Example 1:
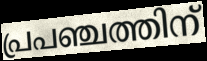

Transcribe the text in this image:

പ്രപഞ്ചത്തിന്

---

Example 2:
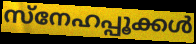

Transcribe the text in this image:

സ്നേഹപ്പൂക്കൾ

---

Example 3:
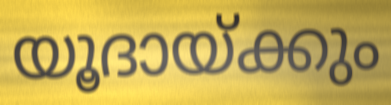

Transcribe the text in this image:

യൂദായ്ക്കും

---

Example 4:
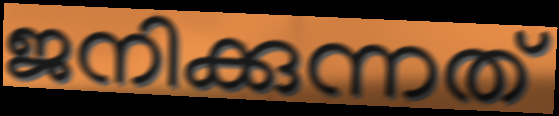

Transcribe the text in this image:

ജനിക്കുന്നത്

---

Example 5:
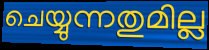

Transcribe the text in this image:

ചെയ്യുന്നതുമില്ല